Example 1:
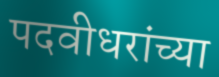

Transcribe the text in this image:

पदवीधरांच्या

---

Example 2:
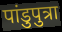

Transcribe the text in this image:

पांडुपुत्रा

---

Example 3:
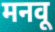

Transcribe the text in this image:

मनवू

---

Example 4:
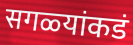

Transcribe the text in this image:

सगळ्यांकडं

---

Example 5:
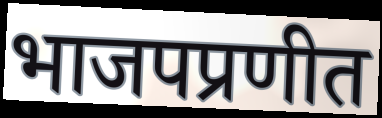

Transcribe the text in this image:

भाजपप्रणीत